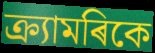
ক্ৰ্যামৰিকে